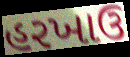
હરખાઉ